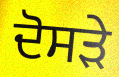
ਦੋਸੜੇ